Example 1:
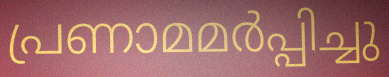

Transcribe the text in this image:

പ്രണാമമർപ്പിച്ചു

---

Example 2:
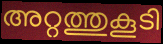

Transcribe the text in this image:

അറ്റത്തുകൂടി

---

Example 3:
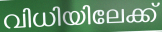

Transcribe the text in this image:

വിധിയിലേക്ക്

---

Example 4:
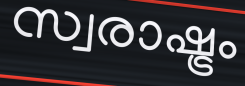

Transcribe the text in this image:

സ്വരാഷ്ട്രം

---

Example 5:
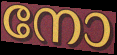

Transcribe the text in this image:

നോ